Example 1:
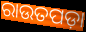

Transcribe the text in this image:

ରାଉତପଡ଼ା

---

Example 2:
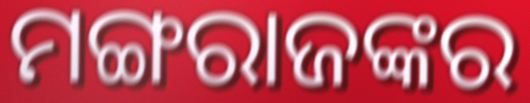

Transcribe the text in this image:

ମଙ୍ଗରାଜଙ୍କର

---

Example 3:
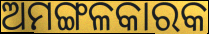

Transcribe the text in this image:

ଅମଙ୍ଗଳକାରକ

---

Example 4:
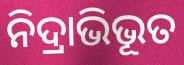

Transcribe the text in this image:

ନିଦ୍ରାଭିଭୂତ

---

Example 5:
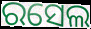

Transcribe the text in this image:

ରସେଲ